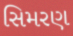
સિમરણ